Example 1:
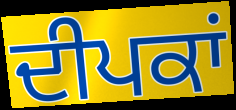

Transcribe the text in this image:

ਦੀਪਕਾਂ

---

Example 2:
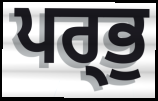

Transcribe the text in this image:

ਪਰ੍ਭੁ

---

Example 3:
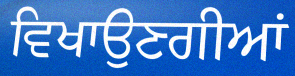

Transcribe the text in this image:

ਵਿਖਾਉਣਗੀਆਂ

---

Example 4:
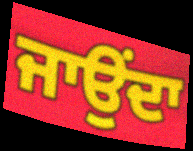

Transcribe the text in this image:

ਜਾਉਂਦਾ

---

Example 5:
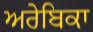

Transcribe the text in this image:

ਅਰੇਬਿਕਾ